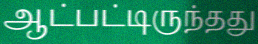
ஆட்பட்டிருந்தது